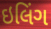
ઇલિંગ